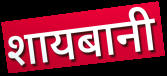
शायबानी